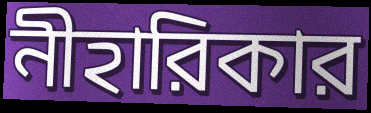
নীহারিকার